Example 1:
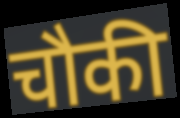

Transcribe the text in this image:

चौकी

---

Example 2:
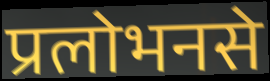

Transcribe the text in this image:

प्रलोभनसे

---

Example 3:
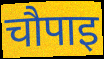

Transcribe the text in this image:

चौपाइ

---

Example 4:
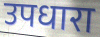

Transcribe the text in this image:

उपधारा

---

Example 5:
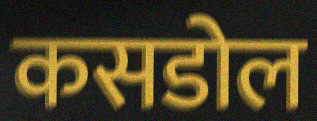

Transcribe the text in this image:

कसडोल